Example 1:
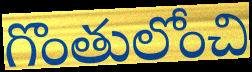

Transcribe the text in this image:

గొంతులోంచి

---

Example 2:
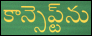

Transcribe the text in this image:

కాన్సెప్ట్‌ను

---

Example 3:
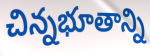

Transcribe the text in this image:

చిన్నభూతాన్ని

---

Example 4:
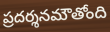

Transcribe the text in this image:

ప్రదర్శనమౌతోంది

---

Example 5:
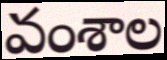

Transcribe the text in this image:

వంశాల